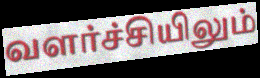
வளர்ச்சியிலும்